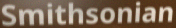
Smithsonian